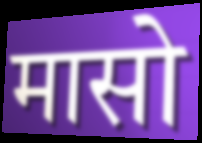
मासो